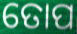
ତୋପ